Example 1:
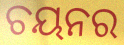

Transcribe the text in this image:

ଚୟନର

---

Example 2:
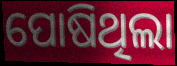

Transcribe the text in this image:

ପୋଷିଥିଲା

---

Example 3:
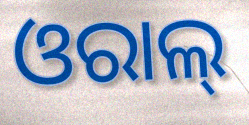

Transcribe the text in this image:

ଓରାଲ୍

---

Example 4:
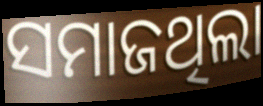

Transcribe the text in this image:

ସମାଜଥିଲା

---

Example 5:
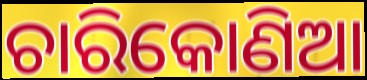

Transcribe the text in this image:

ଚାରିକୋଣିଆ